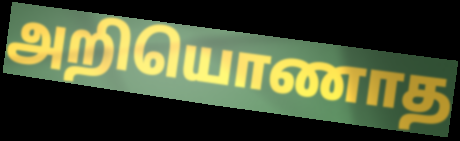
அறியொணாத